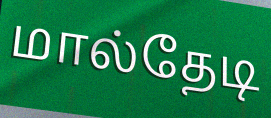
மால்தேடி